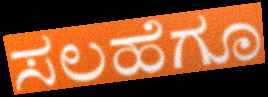
ಸಲಹೆಗೂ